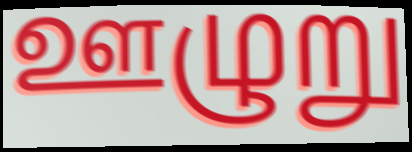
ஊழுறு